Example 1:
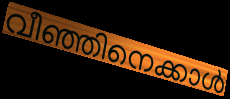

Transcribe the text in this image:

വീഞ്ഞിനെക്കാൾ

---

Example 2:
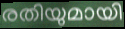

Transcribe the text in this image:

രതിയുമായി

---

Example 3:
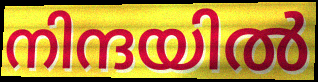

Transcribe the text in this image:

നിന്ദയിൽ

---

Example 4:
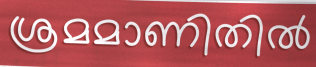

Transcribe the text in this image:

ശ്രമമാണിതിൽ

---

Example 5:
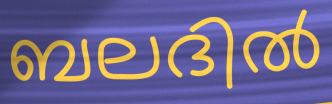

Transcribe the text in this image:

ബലദിൽ